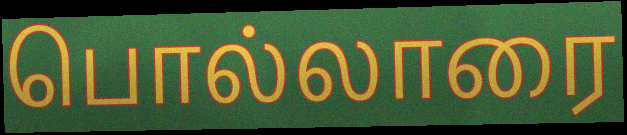
பொல்லாரை